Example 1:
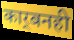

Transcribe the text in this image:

कार्बनही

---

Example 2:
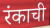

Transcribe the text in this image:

रंकाची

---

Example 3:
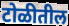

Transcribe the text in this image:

टोळीतील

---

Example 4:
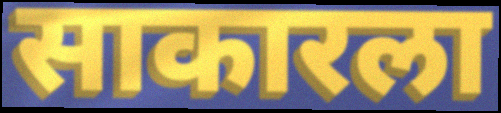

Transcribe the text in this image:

साकारला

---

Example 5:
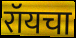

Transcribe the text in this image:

रॉयचा